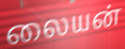
லையன்